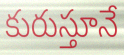
కురుస్తూనే